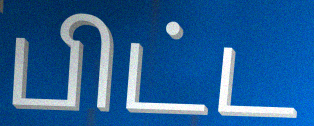
பிட்ட